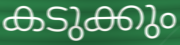
കടുക്കും